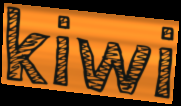
kiwi